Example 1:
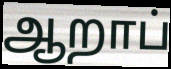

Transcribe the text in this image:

ஆறாப்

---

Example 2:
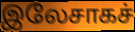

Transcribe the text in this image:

இலேசாகச்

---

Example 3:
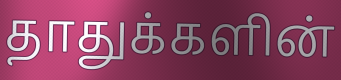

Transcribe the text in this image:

தாதுக்களின்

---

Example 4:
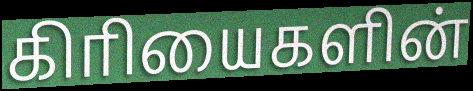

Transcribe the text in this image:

கிரியைகளின்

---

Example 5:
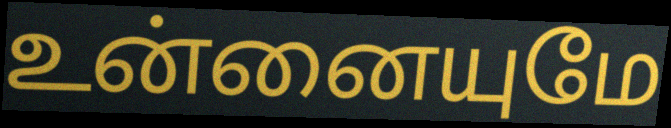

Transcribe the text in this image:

உன்னையுமே